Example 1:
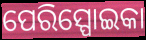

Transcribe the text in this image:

ପେରିସ୍ପୋଇକା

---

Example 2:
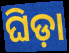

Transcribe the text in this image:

ଘିଡ଼ା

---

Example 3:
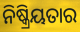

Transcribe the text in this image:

ନିଷ୍କ୍ରିୟତାର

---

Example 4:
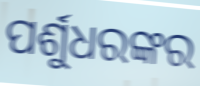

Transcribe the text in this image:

ପର୍ଶୁଧରଙ୍କର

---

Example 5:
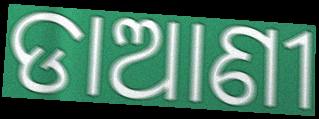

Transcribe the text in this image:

ଡାଆଣୀ